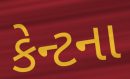
કેન્ટના